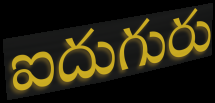
ఐదుగురు